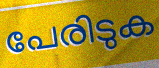
പേരിടുക